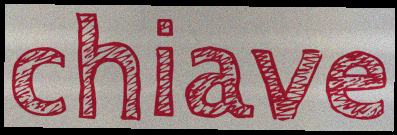
chiave